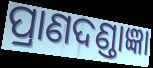
ପ୍ରାଣଦଣ୍ଡାଜ୍ଞା